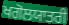
ਖਗੋਲਯਾਤਰੀ